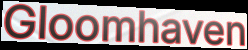
Gloomhaven